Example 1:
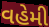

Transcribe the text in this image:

વહેમી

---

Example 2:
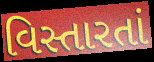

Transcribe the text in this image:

વિસ્તારતાં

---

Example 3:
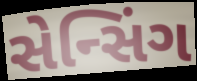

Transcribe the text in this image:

સેન્સિંગ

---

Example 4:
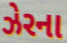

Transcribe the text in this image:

ઝેરના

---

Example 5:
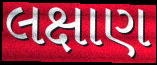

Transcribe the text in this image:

લક્ષાણ